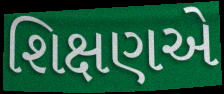
શિક્ષણએ